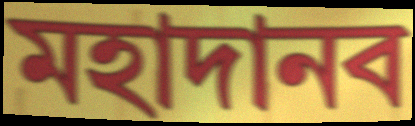
মহাদানব